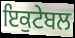
ਇਕੁਟੇਬਲ